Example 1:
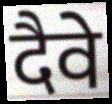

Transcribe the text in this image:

दैवे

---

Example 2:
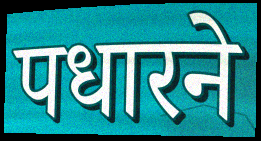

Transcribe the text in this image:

पधारने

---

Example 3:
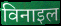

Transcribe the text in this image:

विनाइल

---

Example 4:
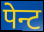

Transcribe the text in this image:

पेन्ट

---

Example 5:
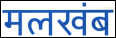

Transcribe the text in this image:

मलखंब